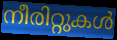
നീരിറ്റുകൾ